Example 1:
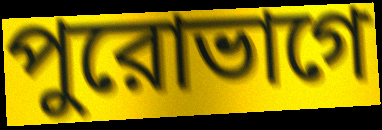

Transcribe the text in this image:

পুরোভাগে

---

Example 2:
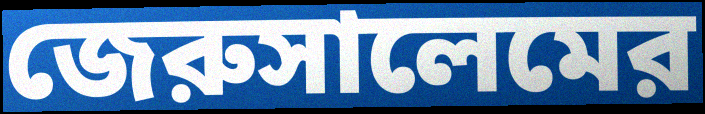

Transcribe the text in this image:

জেরুসালেমের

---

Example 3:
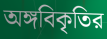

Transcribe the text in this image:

অঙ্গবিকৃতির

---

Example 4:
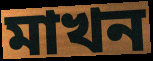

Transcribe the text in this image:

মাখন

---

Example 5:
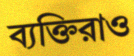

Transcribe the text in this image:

ব্যক্তিরাও